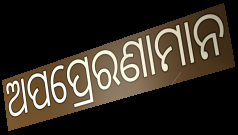
ଅପପ୍ରେରଣାମାନ